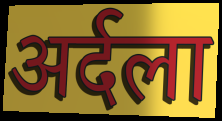
अर्दला